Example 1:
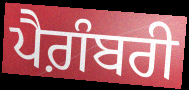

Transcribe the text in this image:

ਪੈਗ਼ੰਬਰੀ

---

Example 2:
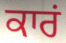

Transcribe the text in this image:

ਕਾਰਂ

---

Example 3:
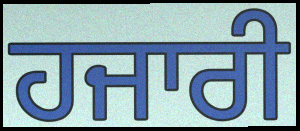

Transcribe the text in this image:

ਹਜਾਰੀ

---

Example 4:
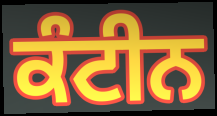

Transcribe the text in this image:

ਕੰਟੀਨ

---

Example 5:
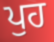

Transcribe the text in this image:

ਪੁਹ